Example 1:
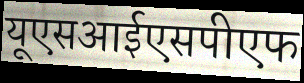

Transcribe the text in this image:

यूएसआईएसपीएफ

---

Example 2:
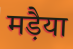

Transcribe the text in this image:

मड़ैया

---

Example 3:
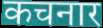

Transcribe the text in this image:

कचनार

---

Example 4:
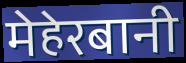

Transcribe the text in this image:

मेहेरबानी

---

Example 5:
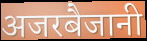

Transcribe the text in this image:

अजरबैजानी